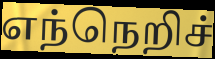
எந்நெறிச்